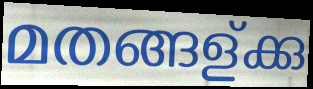
മതങ്ങള്ക്കു